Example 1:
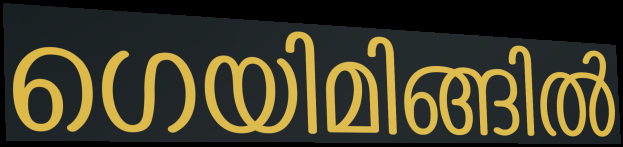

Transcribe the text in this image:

ഗെയിമിങ്ങിൽ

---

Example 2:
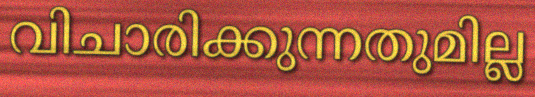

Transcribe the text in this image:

വിചാരിക്കുന്നതുമില്ല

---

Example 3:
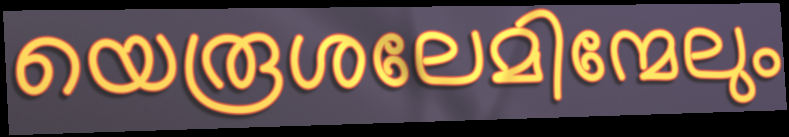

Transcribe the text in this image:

യെരൂശലേമിന്മേലും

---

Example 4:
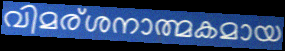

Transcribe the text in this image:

വിമര്ശനാത്മകമായ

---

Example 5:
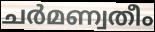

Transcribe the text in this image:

ചർമണ്വതീം